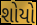
શોયો